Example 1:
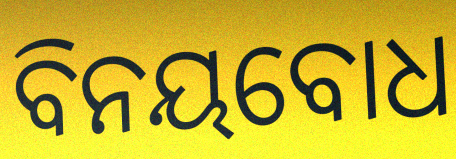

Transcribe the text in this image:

ବିନୟବୋଧ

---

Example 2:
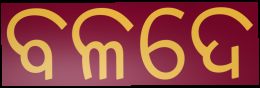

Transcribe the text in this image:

ବଳଦେ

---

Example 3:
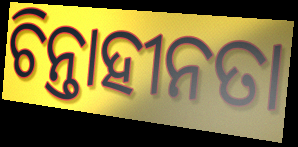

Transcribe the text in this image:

ଚିନ୍ତାହୀନତା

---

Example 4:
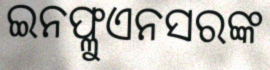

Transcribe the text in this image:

ଇନଫ୍ଳୁଏନସରଙ୍କ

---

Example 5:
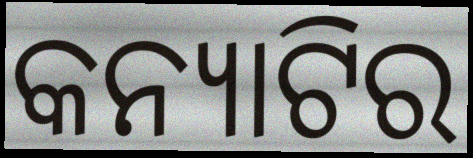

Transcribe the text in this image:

କନ୍ୟାଟିର